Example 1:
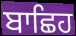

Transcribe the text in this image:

ਬਾਛਿਹ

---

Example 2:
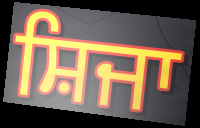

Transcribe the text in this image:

ਸ਼ਿਜਾ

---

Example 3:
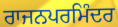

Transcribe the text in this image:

ਰਾਜਨਪਰਮਿੰਦਰ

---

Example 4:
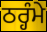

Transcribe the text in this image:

ਠਰ੍ਹੰਮੇ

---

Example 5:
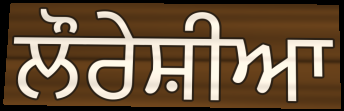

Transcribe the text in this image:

ਲੌਰੇਸ਼ੀਆ